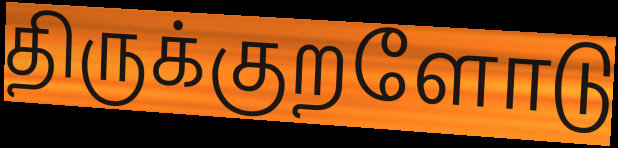
திருக்குறளோடு